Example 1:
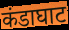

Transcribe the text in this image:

कंडाघाट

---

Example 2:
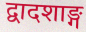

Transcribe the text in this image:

द्वादशाङ्ग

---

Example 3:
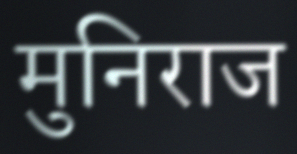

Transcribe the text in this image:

मुनिराज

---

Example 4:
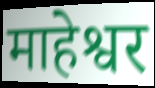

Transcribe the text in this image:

माहेश्वर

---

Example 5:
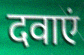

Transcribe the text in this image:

दवाएं